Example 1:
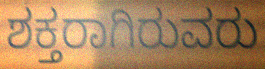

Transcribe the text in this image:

ಶಕ್ತರಾಗಿರುವರು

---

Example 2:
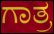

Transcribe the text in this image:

ಗಾತ್ರ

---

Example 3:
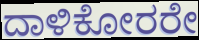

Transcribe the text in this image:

ದಾಳಿಕೋರರೇ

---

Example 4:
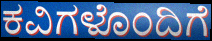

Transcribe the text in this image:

ಕವಿಗಳೊಂದಿಗೆ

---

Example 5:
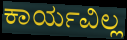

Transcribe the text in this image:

ಕಾರ್ಯವಿಲ್ಲ